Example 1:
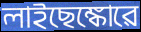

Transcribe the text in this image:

লাইছেঙ্কোৱে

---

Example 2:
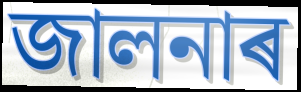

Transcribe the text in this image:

জালনাৰ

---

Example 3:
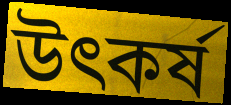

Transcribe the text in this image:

উৎকৰ্ষ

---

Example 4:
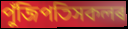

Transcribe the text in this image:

পুঁজিপতিসকলৰ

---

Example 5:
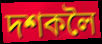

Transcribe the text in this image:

দশকলৈ